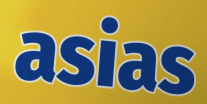
asias